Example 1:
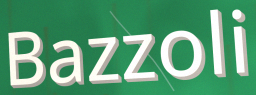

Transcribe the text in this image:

Bazzoli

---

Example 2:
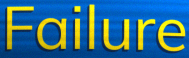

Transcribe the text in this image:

Failure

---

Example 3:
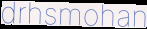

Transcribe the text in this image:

drhsmohan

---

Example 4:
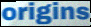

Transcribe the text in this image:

origins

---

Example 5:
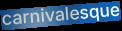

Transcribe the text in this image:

carnivalesque